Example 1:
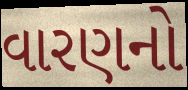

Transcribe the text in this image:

વારણનો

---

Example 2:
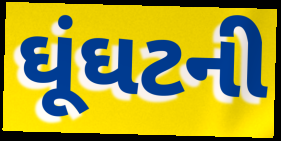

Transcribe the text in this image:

ઘૂંઘટની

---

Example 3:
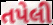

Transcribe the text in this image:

તપેલી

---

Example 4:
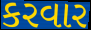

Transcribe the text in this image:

કરવાર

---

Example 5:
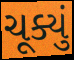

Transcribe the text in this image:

ચૂક્યું